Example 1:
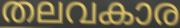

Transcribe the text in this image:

തലവകാര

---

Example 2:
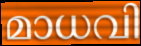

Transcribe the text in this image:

മാധവി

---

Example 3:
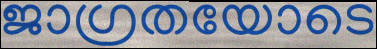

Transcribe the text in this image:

ജാഗ്രതയോടെ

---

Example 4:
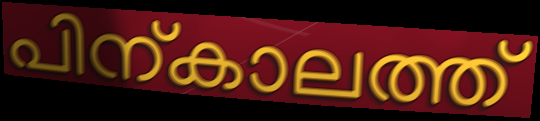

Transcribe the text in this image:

പിന്കാലത്ത്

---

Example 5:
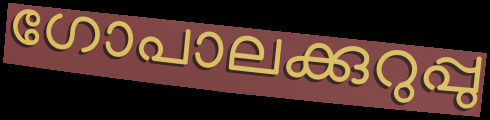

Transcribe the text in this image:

ഗോപാലക്കുറുപ്പു